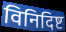
विनिदिष्ट